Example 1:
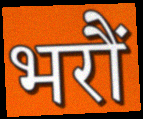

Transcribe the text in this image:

भरौं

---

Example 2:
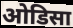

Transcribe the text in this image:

ओडिसा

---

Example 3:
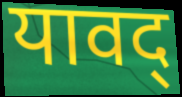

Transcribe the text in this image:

यावद्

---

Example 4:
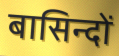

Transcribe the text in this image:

बासिन्दों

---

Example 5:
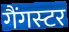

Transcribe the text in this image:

गैंगस्‍टर